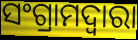
ସଂଗ୍ରାମଦ୍ଵାରା